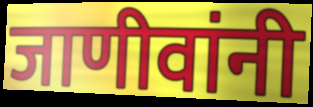
जाणीवांनी